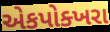
એકપોક્ખરા